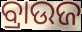
ବ୍ରାଉଜ